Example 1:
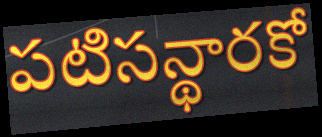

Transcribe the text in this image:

పటిసన్థారకో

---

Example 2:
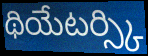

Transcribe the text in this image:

థియేటర్స్కి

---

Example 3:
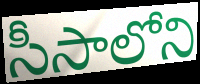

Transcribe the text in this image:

సీసాలోని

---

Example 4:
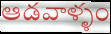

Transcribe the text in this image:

ఆడవాళ్ళం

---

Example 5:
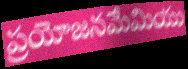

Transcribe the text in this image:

ప్రయోజనమేమియు